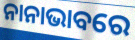
ନାନାଭାବରେ